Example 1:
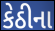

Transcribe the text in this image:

કેઠીના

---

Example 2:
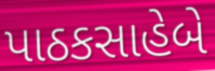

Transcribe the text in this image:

પાઠકસાહેબે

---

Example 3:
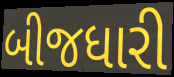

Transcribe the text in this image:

બીજધારી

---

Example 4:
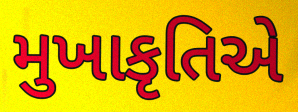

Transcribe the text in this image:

મુખાકૃતિએ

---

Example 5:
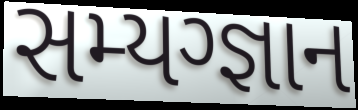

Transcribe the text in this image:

સમ્યગ્જ્ઞાન